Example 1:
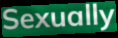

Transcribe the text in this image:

Sexually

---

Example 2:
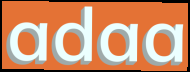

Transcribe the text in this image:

adaa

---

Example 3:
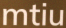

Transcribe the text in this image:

mtiu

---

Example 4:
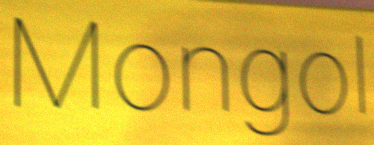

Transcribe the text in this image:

Mongol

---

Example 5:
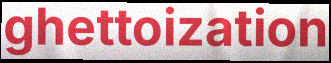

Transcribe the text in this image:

ghettoization